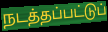
நடத்தப்பட்டுப்